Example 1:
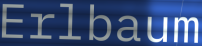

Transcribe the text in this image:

Erlbaum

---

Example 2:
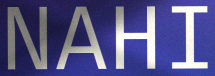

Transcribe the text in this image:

NAHI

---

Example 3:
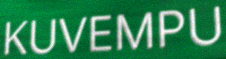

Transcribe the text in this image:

KUVEMPU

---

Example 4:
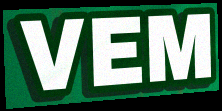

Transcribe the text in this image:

VEM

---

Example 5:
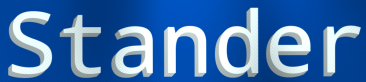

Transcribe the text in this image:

Stander